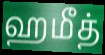
ஹமீத்